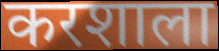
करशाला